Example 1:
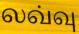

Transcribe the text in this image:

லவ்வு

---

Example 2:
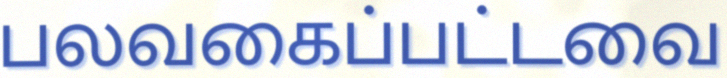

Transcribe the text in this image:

பலவகைப்பட்டவை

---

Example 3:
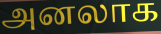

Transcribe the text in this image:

அனலாக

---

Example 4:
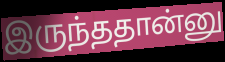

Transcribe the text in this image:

இருந்ததான்னு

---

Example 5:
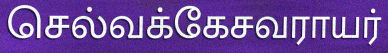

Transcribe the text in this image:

செல்வக்கேசவராயர்